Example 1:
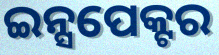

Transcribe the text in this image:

ଇନ୍ସପେକ୍ଟର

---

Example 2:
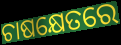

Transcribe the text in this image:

ଚାଷକ୍ଷେତରେ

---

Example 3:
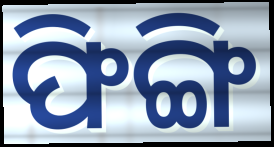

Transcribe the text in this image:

ଫିଙ୍ଗି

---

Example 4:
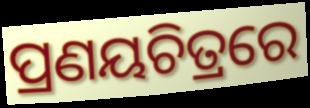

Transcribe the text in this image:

ପ୍ରଣୟଚିତ୍ରରେ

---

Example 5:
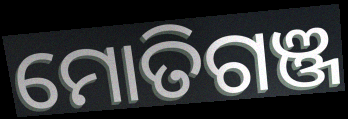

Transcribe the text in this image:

ମୋତିଗଞ୍ଜ